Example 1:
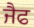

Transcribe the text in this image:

ਜੈਫ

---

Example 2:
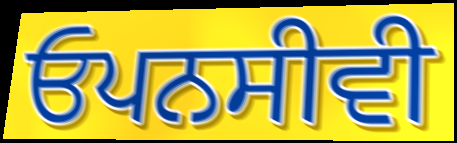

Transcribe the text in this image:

ਓਪਨਸੀਵੀ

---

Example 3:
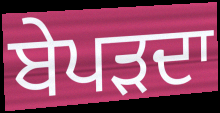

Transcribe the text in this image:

ਬੇਪੜਦਾ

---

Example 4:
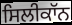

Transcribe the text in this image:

ਸਿਲੀਕਾੱਨ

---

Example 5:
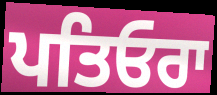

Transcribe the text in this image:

ਪਤਿਓਰਾ